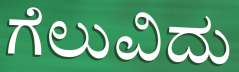
ಗೆಲುವಿದು